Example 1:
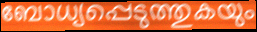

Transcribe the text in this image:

ബോധ്യപ്പെടുത്തുകയും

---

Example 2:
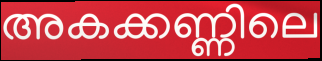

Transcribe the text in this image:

അകക്കണ്ണിലെ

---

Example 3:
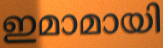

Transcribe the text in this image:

ഇമാമായി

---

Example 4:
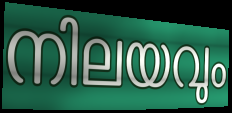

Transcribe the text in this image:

നിലയവും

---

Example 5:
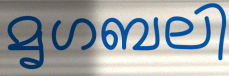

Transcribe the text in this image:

മൃഗബലി